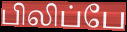
பிலிப்பே